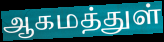
ஆகமத்துள்